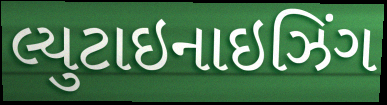
લ્યુટાઇનાઇઝિંગ